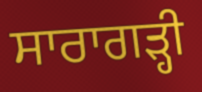
ਸਾਰਾਗੜ੍ਹੀ